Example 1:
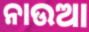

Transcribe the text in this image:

ନାଉଆ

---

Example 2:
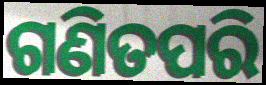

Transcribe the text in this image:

ଗଣିତପରି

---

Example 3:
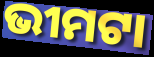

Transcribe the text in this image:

ଭୀମଟା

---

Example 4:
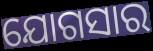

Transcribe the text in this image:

ଯୋଗସାର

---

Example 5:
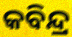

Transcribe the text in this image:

କବିନ୍ଦ୍ର